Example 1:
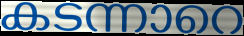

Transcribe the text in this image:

കടന്നാറെ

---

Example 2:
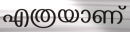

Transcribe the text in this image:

എത്രയാണ്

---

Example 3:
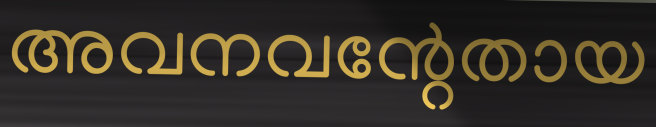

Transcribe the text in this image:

അവനവന്റേതായ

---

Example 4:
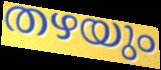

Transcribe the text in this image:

തഴയും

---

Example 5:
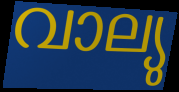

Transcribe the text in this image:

വാല്യു